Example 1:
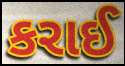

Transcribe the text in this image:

કરાઈ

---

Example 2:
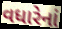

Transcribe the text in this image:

વધારેનાં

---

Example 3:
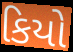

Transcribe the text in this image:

કિયો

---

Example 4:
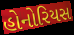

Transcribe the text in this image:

હોનોરિયસ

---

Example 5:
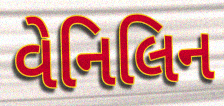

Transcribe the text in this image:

વેનિલિન